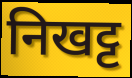
निखट्ट